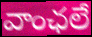
వాంఛలే